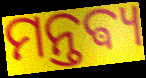
ମନ୍ତଵ୍ୟ